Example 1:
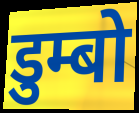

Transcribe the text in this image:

डुम्बो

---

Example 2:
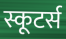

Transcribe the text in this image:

स्कूटर्स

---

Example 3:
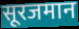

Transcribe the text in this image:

सूरजमान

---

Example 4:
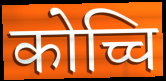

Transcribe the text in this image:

कोच्चि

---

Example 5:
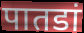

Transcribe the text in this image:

पातडां